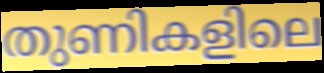
തുണികളിലെ